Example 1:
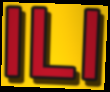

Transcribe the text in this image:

ILI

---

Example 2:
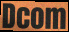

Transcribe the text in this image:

Dcom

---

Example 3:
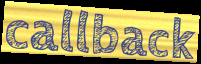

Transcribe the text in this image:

callback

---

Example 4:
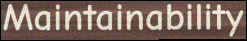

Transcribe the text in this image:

Maintainability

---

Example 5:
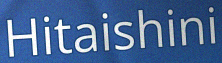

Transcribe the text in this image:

Hitaishini